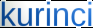
kurinci